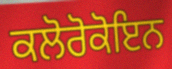
ਕਲੋਰੋਕੋਇਨ